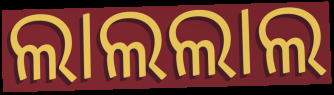
ଲାଲଲାଲ